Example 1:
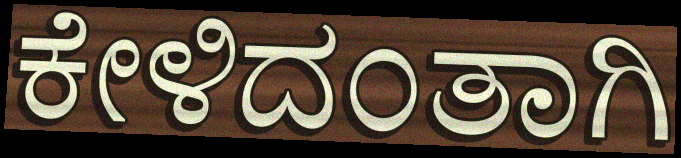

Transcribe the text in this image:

ಕೇಳಿದಂತಾಗಿ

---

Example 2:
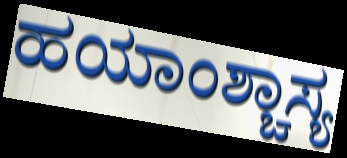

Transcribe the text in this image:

ಹಯಾಂಶ್ಚಾಸ್ಯ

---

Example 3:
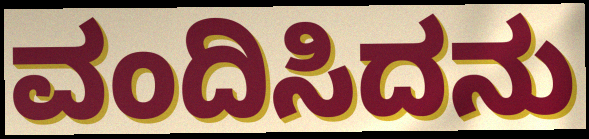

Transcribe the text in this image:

ವಂದಿಸಿದನು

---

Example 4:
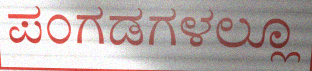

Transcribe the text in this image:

ಪಂಗಡಗಳಲ್ಲೂ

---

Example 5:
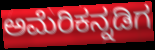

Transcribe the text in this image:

ಅಮೆರಿಕನ್ನಡಿಗ